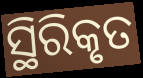
ସ୍ଥିରିକୃତ